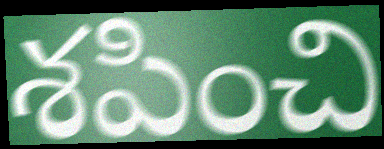
శపించి